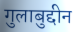
गुलाबुद्दीन